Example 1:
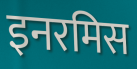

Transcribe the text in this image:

इनरमिस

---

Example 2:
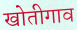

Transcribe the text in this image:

खोतीगाव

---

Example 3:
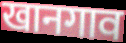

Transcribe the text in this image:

खानगाव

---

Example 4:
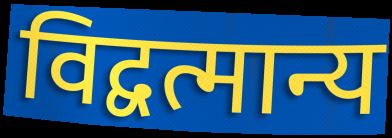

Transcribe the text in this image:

विद्वत्मान्य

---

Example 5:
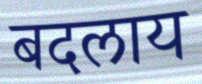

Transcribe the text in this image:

बदलाय